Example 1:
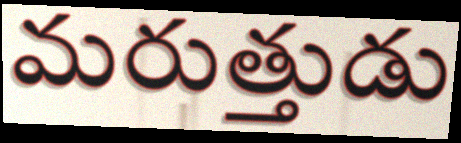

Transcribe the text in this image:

మరుత్తుడు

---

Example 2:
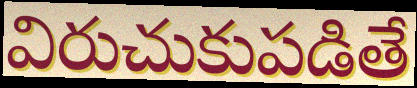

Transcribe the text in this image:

విరుచుకుపడితే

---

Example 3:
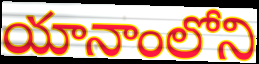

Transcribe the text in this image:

యానాంలోని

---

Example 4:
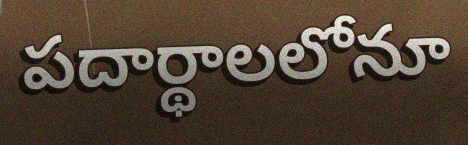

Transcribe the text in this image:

పదార్థాలలోనూ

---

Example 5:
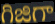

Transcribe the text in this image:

గిజిగా